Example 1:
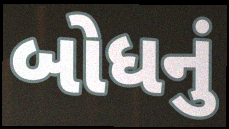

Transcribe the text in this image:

બોધનું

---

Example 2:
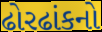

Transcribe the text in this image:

ઢોરઢાંકનો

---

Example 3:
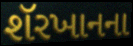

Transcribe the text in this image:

શૅરખાનના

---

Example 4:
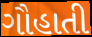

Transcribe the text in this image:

ગૌહાતી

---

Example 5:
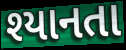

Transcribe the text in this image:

શ્યાનતા